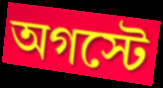
অগস্টে